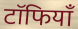
टॉफियाँ